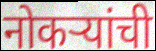
नोकऱ्यांची